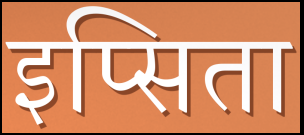
इप्सिता